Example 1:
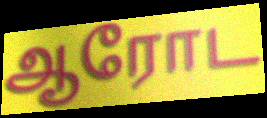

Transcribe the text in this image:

ஆரோட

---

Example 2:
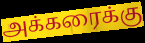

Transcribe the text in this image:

அக்கரைக்கு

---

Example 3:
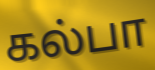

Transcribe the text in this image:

கல்பா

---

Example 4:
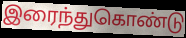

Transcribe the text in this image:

இரைந்துகொண்டு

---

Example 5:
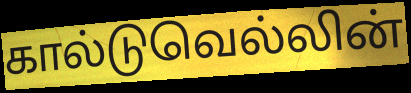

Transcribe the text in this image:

கால்டுவெல்லின்